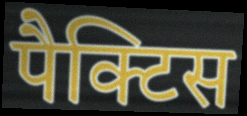
पैक्टिस